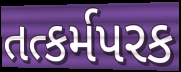
તત્કર્મપરક